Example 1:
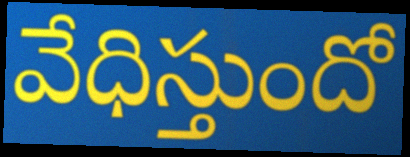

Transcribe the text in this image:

వేధిస్తుందో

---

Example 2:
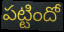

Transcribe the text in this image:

పట్టిందో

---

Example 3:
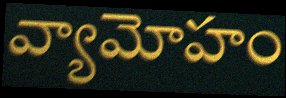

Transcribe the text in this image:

వ్యామోహం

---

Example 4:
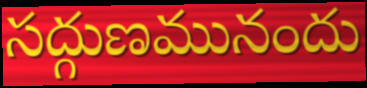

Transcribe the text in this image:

సద్గుణమునందు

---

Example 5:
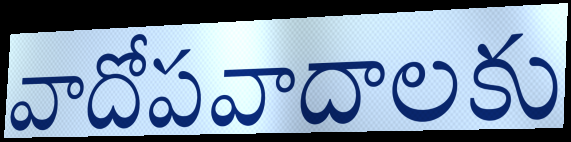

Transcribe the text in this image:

వాదోపవాదాలకు